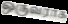
ஒருவராக